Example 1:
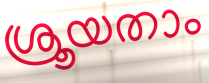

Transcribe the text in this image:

ശ്രൂയതാം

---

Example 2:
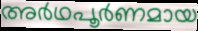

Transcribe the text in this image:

അർഥപൂർണമായ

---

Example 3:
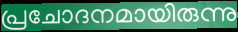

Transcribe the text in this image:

പ്രചോദനമായിരുന്നു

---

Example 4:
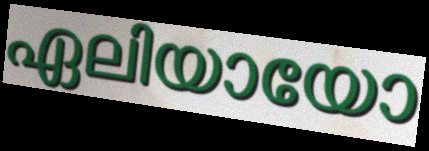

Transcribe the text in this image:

ഏലിയായോ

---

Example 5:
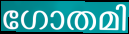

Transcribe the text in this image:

ഗോതമി